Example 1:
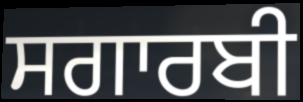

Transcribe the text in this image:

ਸਗਾਰਬੀ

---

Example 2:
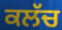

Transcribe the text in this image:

ਕਲੱਚ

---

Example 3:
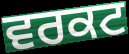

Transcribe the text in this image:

ਵਰਕਟ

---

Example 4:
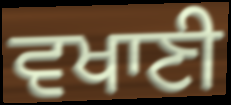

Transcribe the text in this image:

ਵਖਾਣੀ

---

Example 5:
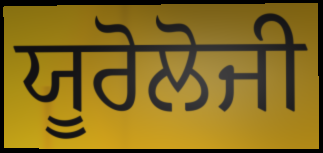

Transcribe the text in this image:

ਯੂਰੋਲੋਜੀ